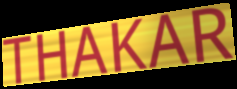
THAKAR